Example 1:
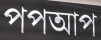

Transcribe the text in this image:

পপআপ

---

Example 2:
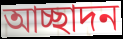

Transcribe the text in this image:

আচ্ছাদন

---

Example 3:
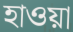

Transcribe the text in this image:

হাওয়া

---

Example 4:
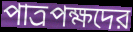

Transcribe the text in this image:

পাত্রপক্ষদের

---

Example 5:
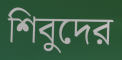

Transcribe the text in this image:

শিবুদের